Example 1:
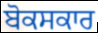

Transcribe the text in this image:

ਬੋਕਸਕਾਰ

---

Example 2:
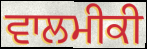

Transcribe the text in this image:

ਵਾਲਮੀਕੀ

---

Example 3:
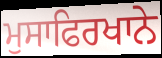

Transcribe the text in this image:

ਮੁਸਾਫਿਰਖਾਨੇ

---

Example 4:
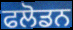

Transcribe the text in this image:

ਫਲੋਡਨ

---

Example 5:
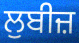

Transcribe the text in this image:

ਲੁਬੀਜ਼